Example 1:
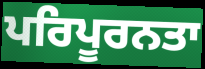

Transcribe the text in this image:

ਪਰਿਪੂਰਨਤਾ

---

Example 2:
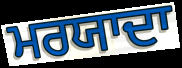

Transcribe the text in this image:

ਮਰਯਾਦਾ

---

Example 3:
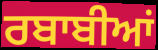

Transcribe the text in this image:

ਰਬਾਬੀਆਂ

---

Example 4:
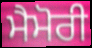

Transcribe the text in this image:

ਮੈਮੋਰੀ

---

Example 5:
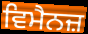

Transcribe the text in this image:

ਵਿਮੈਨਜ਼